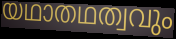
യഥാതഥത്വവും